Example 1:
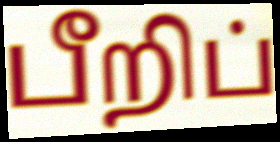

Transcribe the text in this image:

பீறிப்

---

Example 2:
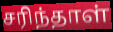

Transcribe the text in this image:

சரிந்தாள்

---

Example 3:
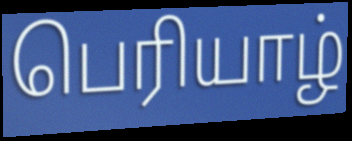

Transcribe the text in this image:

பெரியாழ்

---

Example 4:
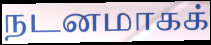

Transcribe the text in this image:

நடனமாகக்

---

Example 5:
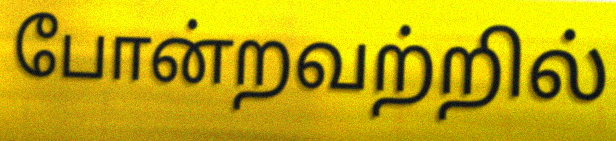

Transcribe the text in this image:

போன்றவற்றில்